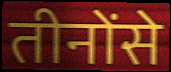
तीनोंसे